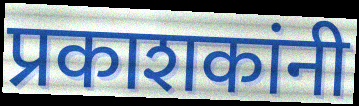
प्रकाशकांनी